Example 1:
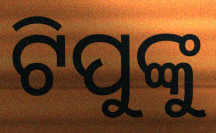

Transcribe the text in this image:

ଟିପୁଙ୍କୁ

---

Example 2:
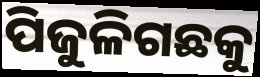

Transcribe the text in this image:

ପିଜୁଳିଗଛକୁ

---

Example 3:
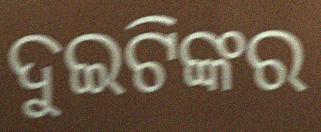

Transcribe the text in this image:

ଦୁଇଟିଙ୍କର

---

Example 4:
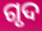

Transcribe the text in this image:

ଗୃଦ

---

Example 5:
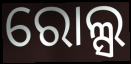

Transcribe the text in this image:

ରୋଲ୍ସ